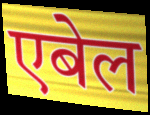
एबेल